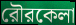
রৌরকেলা